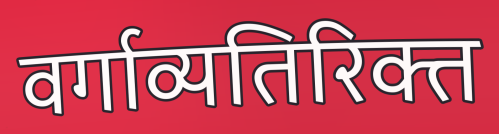
वर्गाव्यतिरिक्त